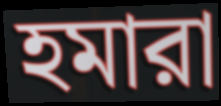
হমারা